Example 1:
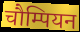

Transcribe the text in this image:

चौम्पियन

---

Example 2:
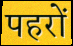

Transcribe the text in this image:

पहरों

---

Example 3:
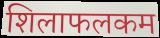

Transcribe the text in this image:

शिलाफलकम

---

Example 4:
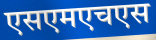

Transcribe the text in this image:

एसएमएचएस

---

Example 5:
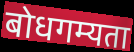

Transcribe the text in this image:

बोधगम्यता